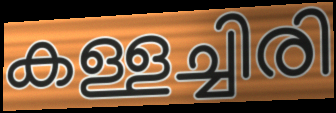
കള്ളച്ചിരി